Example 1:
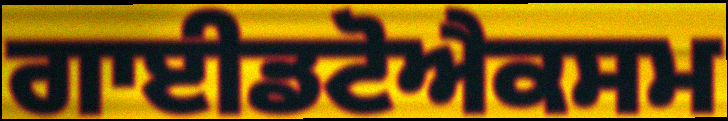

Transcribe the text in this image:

ਗਾਈਡਟੋਐਕਸਮ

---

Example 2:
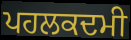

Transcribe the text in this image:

ਪਹਲਕਦਮੀ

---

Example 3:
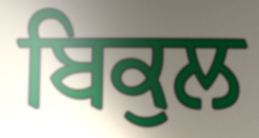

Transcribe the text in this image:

ਬਿਕੁਲ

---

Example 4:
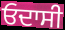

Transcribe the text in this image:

ਓਦਾਸੀ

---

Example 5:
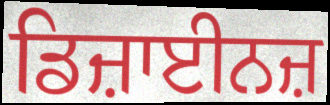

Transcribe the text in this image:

ਡਿਜ਼ਾਈਨਜ਼